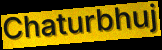
Chaturbhuj